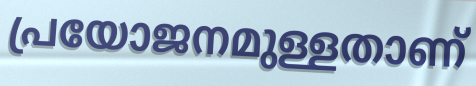
പ്രയോജനമുള്ളതാണ്